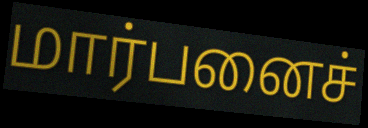
மார்பனைச்